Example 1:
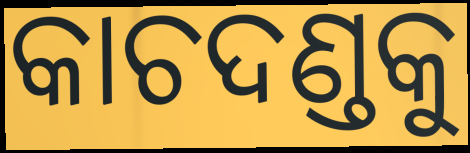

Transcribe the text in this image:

କାଚଦଣ୍ଡକୁ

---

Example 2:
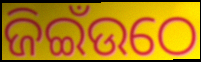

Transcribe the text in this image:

ଜିଇଁଉଠେ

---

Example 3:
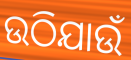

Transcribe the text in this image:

ଉଠିଯାଉଁ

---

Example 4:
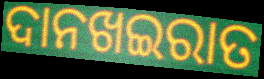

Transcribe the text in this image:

ଦାନଖଇରାତ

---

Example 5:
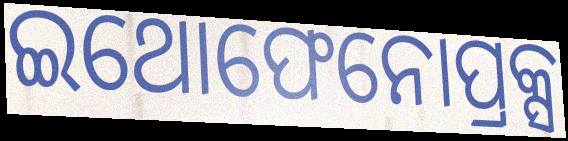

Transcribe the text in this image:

ଇଥୋଫେନୋପ୍ରକ୍ସ